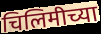
चिलिमीच्या